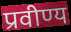
प्रवीण्य